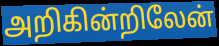
அறிகின்றிலேன்